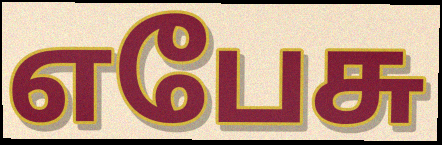
எபேசு